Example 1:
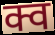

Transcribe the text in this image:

क्व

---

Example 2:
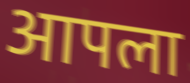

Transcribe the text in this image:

आपला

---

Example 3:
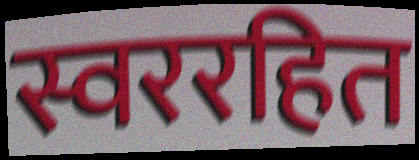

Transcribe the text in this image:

स्वररहित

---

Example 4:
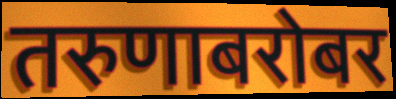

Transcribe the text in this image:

तरुणाबरोबर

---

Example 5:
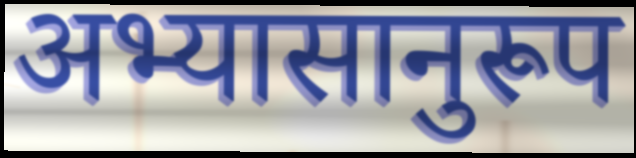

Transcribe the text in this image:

अभ्यासानुरूप